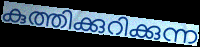
കുത്തിക്കുറിക്കുന്ന